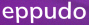
eppudo